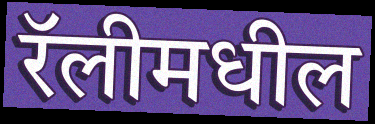
रॅलीमधील